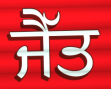
ਜੈੱਤ